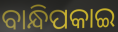
ବାନ୍ଧିପକାଇ